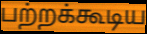
பற்றக்கூடிய